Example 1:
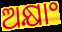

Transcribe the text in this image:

ଅକ୍ଷାଂ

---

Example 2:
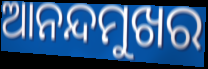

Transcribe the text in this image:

ଆନନ୍ଦମୁଖର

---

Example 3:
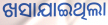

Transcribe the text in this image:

ଖସାଯାଇଥିଲା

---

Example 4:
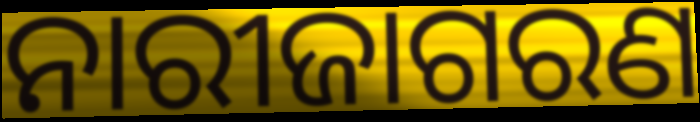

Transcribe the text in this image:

ନାରୀଜାଗରଣ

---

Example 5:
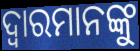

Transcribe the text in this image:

ଦ୍ୱାରମାନଙ୍କୁ